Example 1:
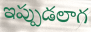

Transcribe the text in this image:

ఇప్పుడలాగ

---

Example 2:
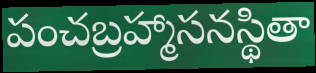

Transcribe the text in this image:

పంచబ్రహ్మాసనస్థితా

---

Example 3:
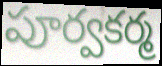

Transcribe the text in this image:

పూర్వకర్మ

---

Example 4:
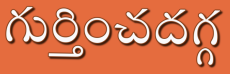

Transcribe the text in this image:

గుర్తించదగ్గ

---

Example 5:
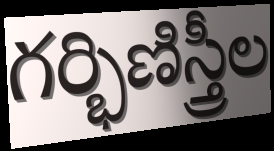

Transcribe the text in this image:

గర్భిణిస్త్రీల